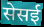
सेसई